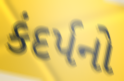
કંદર્પનો